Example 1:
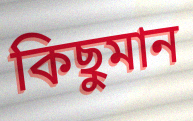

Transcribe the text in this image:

কিছুমান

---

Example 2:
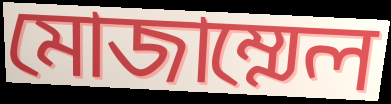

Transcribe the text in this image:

মোজাম্মেল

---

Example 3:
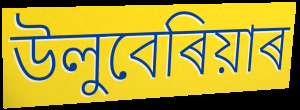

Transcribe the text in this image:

উলুবেৰিয়াৰ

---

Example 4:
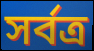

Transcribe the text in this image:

সৰ্বত্ৰ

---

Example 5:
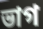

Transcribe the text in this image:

ভাগ